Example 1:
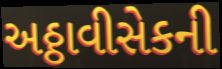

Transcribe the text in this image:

અઠ્ઠાવીસેકની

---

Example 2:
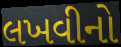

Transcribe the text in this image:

લખવીનો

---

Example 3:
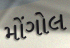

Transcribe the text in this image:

મોંગોલ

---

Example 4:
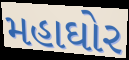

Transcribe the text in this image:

મહાઘોર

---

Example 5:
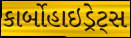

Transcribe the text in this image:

કાર્બોહાઇડ્રેટ્સ